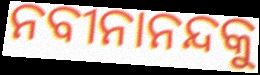
ନବୀନାନନ୍ଦକୁ